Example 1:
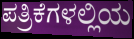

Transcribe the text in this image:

ಪತ್ರಿಕೆಗಳಲ್ಲಿಯ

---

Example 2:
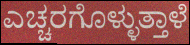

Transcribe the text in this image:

ಎಚ್ಚರಗೊಳ್ಳುತ್ತಾಳೆ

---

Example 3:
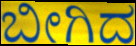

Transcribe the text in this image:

ಬೀಗಿದ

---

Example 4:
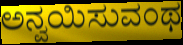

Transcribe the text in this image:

ಅನ್ವಯಿಸುವಂಥ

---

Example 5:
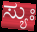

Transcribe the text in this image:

ಸ್ಯುಃ